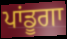
ਪਾਂਡੂਗਾ